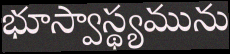
భూస్వాస్థ్యమును